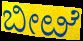
ಬೀೞೆ